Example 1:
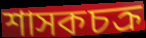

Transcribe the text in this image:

শাসকচক্র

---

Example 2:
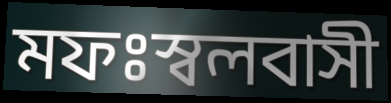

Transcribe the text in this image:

মফঃস্বলবাসী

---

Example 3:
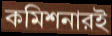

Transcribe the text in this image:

কমিশনারই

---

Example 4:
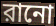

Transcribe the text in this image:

রানো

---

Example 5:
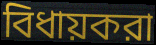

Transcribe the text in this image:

বিধায়করা